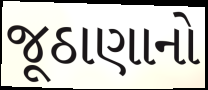
જૂઠાણાનો